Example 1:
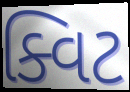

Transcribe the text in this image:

ક્વિટ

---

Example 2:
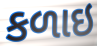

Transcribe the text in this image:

કળાઇ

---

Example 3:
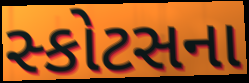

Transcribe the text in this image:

સ્કોટસના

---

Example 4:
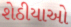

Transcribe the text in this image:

શેઠીયાઓ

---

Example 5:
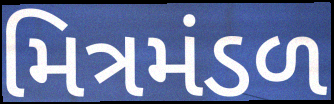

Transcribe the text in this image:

મિત્રમંડળ